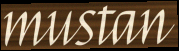
mustan